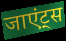
जाएंट्स